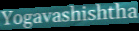
Yogavashishtha